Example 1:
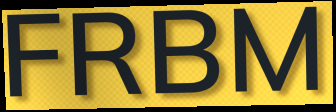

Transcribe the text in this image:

FRBM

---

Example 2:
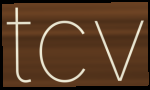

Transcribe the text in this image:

tcv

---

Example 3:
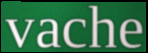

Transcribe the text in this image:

vache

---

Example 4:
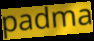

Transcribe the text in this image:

padma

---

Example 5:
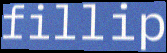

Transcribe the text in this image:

fillip